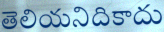
తెలియనిదికాదు